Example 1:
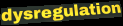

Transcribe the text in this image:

dysregulation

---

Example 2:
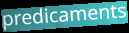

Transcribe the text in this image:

predicaments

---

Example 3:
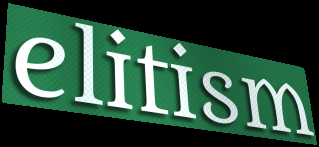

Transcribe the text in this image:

elitism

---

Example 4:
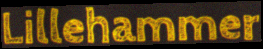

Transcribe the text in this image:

Lillehammer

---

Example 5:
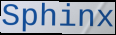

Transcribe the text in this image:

Sphinx